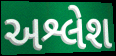
અશ્લેશ